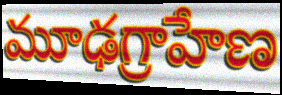
మూఢగ్రాహేణ